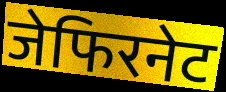
जेफिरनेट